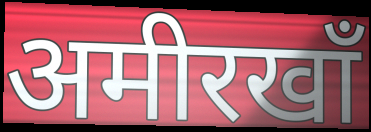
अमीरखाँ